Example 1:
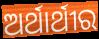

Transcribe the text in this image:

ଅର୍ଥାର୍ଥୀର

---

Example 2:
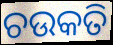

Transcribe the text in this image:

ଚଉକତି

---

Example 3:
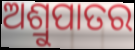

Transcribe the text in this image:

ଅଶ୍ରୁପାତର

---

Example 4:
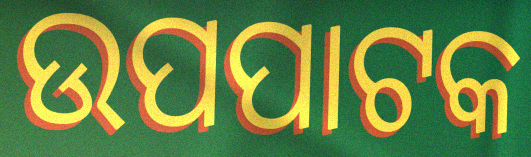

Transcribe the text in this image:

ଉପପାଟକ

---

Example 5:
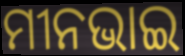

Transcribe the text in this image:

ମୀନଭାଇ